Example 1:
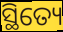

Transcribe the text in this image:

ସ୍ଥିତ୍ୟେ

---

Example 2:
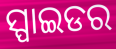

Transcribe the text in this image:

ସ୍ପାଇଡର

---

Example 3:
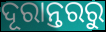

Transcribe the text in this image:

ଦୂରାନ୍ତରରୁ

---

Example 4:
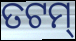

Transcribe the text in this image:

ତଟମ୍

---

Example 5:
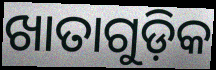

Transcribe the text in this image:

ଖାତାଗୁଡ଼ିକ